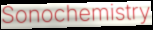
Sonochemistry